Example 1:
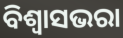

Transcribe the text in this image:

ବିଶ୍ୱାସଭରା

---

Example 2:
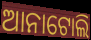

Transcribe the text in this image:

ଆନାଟୋଲି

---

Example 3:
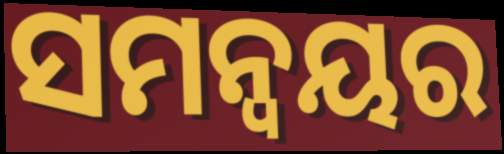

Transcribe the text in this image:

ସମନ୍ଵୟର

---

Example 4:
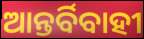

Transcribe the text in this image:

ଆନ୍ତର୍ବିବାହୀ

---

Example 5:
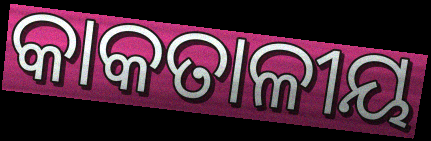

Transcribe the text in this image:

କାକତାଳୀୟ